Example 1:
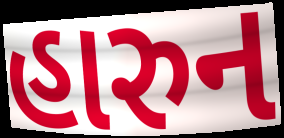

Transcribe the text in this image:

હારુન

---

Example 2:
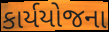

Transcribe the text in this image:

કાર્યયોજના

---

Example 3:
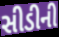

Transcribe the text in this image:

સીડીની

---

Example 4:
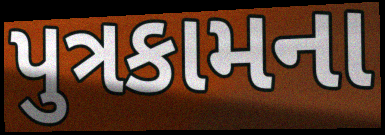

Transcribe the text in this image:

પુત્રકામના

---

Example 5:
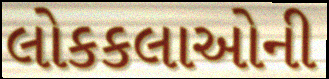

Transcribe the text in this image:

લોકકલાઓની